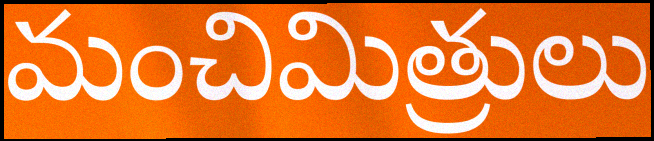
మంచిమిత్రులు